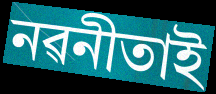
নৱনীতাই